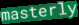
masterly